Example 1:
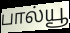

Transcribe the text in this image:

பால்யூ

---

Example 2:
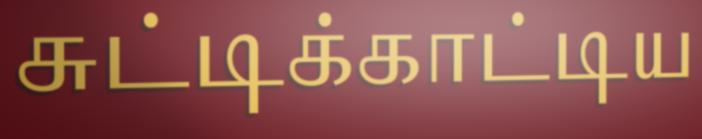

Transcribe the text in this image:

சுட்டிக்காட்டிய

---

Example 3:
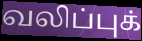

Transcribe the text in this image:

வலிப்புக்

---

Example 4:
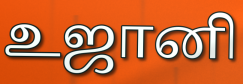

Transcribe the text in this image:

உஜானி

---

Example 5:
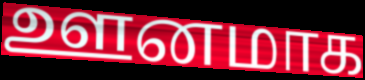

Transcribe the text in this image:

ஊனமாக